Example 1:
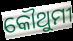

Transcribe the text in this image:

କୌଥୁମୀ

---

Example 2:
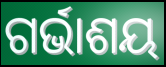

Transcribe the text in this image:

ଗର୍ଭାଶୟ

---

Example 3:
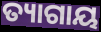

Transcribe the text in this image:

ତ୍ୟାଗାୟ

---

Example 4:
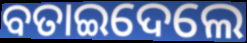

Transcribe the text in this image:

ବତାଇଦେଲେ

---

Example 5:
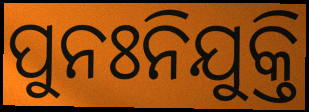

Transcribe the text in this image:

ପୁନଃନିଯୁକ୍ତି